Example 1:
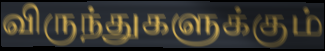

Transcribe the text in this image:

விருந்துகளுக்கும்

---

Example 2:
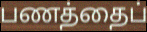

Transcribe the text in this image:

பணத்தைப்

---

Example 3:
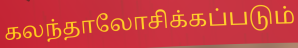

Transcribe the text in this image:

கலந்தாலோசிக்கப்படும்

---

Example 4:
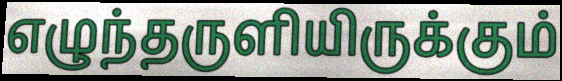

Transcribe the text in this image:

எழுந்தருளியிருக்கும்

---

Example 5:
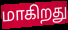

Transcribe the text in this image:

மாகிறது